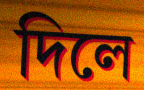
দিলে